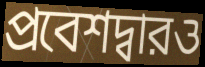
প্রবেশদ্বারও